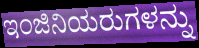
ಇಂಜಿನಿಯರುಗಳನ್ನು